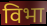
विभा